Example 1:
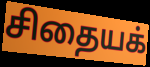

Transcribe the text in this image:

சிதையக்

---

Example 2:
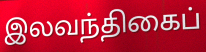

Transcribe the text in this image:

இலவந்திகைப்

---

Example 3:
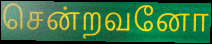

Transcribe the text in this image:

சென்றவனோ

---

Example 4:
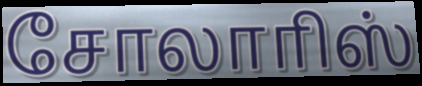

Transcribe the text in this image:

சோலாரிஸ்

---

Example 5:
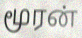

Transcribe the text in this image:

மூரன்